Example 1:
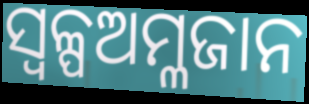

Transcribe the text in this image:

ସ୍ୱଳ୍ପଅମ୍ଳଜାନ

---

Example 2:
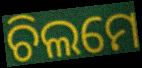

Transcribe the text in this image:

ଚିଲମେ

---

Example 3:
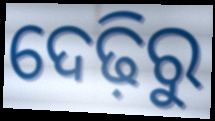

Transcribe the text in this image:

ଦେଢ଼ିରୁ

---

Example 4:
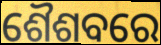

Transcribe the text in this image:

ଶୈଶବରେ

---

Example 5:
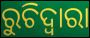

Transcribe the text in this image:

ରୁଚିଦ୍ୱାରା